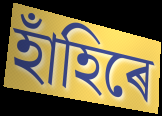
হাঁহিৰে